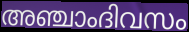
അഞ്ചാംദിവസം